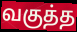
வகுத்த